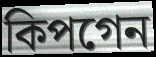
কিপগেন